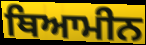
ਥਿਆਮੀਨ